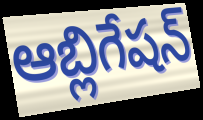
ఆబ్లిగేషన్